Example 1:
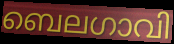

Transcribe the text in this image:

ബെലഗാവി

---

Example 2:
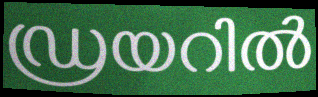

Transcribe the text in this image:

ഡ്രയറിൽ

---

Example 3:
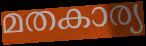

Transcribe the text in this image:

മതകാര്യ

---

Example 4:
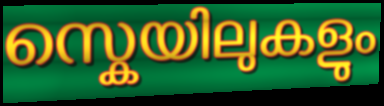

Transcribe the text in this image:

സ്കെയിലുകളും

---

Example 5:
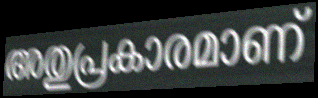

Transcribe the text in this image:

അതുപ്രകാരമാണ്